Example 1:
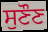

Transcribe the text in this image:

ਸੁਣੌਣ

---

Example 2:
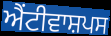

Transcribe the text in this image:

ਐਂਟੀਵਾਸ਼ਪਸ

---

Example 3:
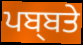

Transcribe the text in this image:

ਪਬ੍ਬਤੇ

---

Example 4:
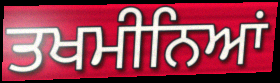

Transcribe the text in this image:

ਤਖਮੀਨਿਆਂ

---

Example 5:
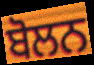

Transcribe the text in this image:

ਬੋਲਨ